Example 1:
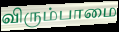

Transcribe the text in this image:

விரும்பாமை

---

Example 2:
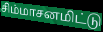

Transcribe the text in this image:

சிம்மாசனமிட்டு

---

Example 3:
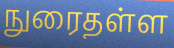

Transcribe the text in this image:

நுரைதள்ள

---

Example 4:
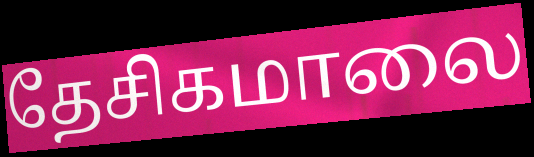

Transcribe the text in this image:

தேசிகமாலை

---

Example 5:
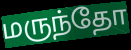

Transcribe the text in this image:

மருந்தோ